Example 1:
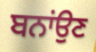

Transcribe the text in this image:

ਬਨਾਂਉਣ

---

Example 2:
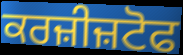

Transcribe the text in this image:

ਕਰਜ਼ੀਜ਼ਟੋਫ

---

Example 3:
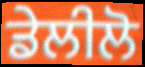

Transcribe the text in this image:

ਡੇਲੀਲੋ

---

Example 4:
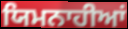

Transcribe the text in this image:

ਯਿਮਨਾਹੀਆਂ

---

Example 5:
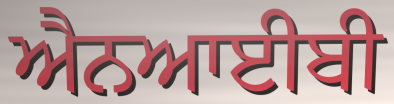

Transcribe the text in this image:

ਐਨਆਈਬੀ